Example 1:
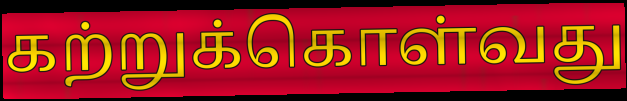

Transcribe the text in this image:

கற்றுக்கொள்வது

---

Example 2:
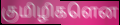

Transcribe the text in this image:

குமிழிகளென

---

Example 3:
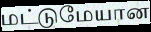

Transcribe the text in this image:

மட்டுமேயான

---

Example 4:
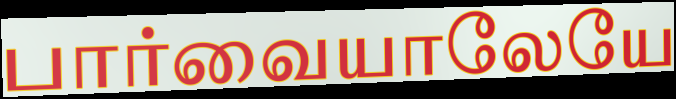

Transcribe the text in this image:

பார்வையாலேயே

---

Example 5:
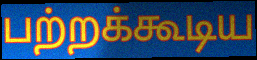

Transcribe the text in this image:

பற்றக்கூடிய